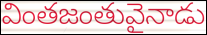
వింతజంతువైనాడు